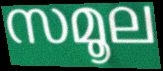
സമൂല